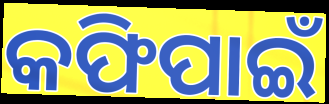
କଫିପାଇଁ